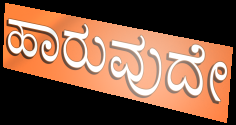
ಹಾರುವುದೇ